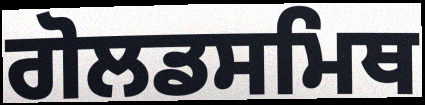
ਗੋਲਡਸਮਿਥ